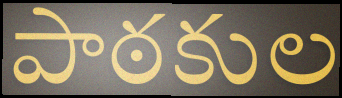
పాఠకుల